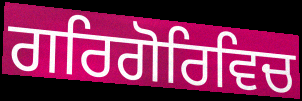
ਗਰਿਗੋਰਿਵਿਚ